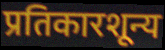
प्रतिकारशून्य